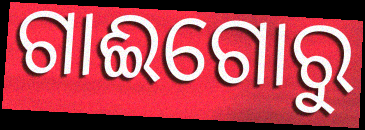
ଗାଈଗୋରୁ